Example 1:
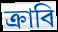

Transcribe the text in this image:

ক্রাবি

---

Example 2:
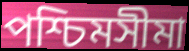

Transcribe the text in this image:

পশ্চিমসীমা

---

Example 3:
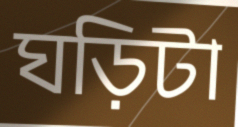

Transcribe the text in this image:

ঘড়িটা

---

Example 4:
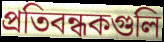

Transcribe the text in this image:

প্রতিবন্ধকগুলি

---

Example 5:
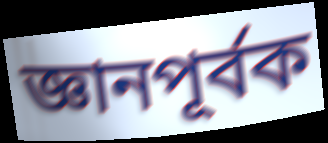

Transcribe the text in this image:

জ্ঞানপূর্বক